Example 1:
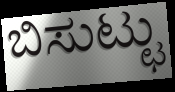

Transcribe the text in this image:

ಬಿಸುಟ್ಟು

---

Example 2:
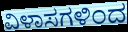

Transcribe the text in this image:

ವಿಳಾಸಗಳಿಂದ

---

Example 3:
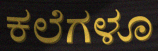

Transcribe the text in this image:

ಕಲೆಗಳೂ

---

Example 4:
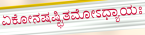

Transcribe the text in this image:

ಏಕೋನಷಷ್ಟಿತಮೋಽಧ್ಯಾಯಃ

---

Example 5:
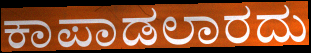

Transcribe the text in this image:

ಕಾಪಾಡಲಾರದು